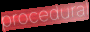
procedural